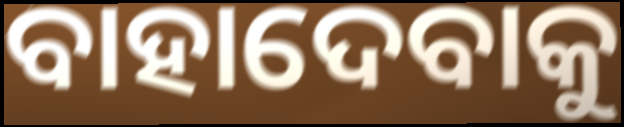
ବାହାଦେବାକୁ